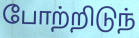
போற்றிடுந்